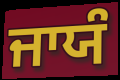
ਜਾਯੰ